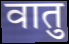
वातु